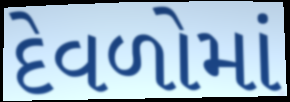
દેવળોમાં